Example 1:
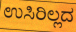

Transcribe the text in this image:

ಉಸಿರಿಲ್ಲದ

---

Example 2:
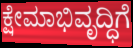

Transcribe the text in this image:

ಕ್ಷೇಮಾಭಿವೃದ್ಧಿಗೆ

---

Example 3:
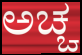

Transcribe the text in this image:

ಅಚ್ಚ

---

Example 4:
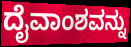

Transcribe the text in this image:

ದೈವಾಂಶವನ್ನು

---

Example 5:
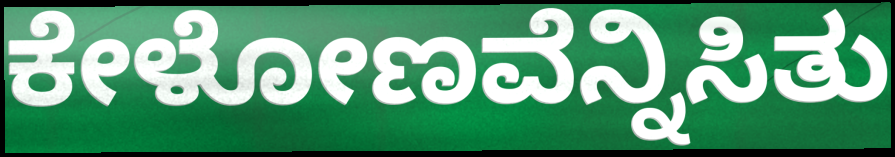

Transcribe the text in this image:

ಕೇಳೋಣವೆನ್ನಿಸಿತು